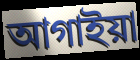
আগাইয়া